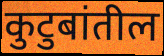
कुटुबांतील